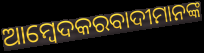
ଆମ୍ବେଦକରବାଦୀମାନଙ୍କ